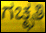
ಗಚ್ಛತಿ